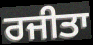
ਰਜੀਤਾ